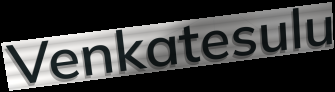
Venkatesulu